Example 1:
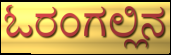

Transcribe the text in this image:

ಓರಂಗಲ್ಲಿನ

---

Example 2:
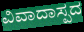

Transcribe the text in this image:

ವಿವಾದಾಸ್ಪದ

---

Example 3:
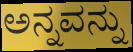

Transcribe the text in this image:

ಅನ್ನವನ್ನು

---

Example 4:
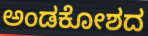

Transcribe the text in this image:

ಅಂಡಕೋಶದ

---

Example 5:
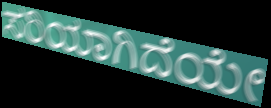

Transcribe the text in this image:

ಸರಿಯಾಗಿದೆಯೇ